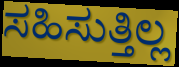
ಸಹಿಸುತ್ತಿಲ್ಲ